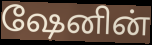
ஷேனின்